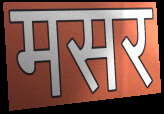
मसर